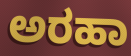
ಅರಹಾ